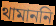
থামাননি